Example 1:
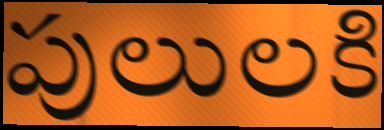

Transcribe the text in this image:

పులులకి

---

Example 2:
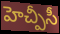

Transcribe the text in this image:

హెచ్పీసీ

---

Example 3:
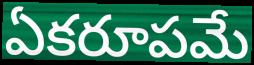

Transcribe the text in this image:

ఏకరూపమే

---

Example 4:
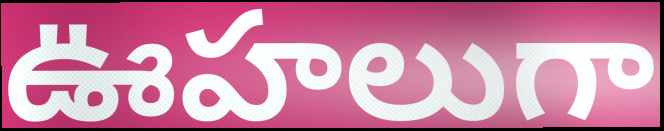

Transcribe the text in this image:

ఊహలుగా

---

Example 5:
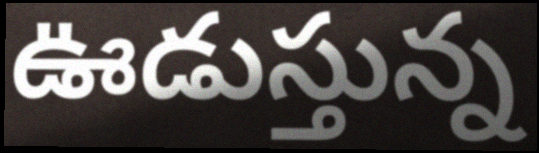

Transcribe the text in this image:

ఊడుస్తున్న